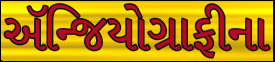
ઍન્જિયોગ્રાફીના